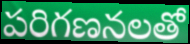
పరిగణనలతో